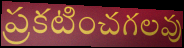
ప్రకటించగలవు